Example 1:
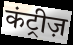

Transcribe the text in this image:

कंट्रीज़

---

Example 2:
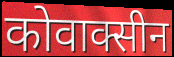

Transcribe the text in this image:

कोवाक्सीन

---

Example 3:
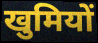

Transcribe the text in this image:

खुमियों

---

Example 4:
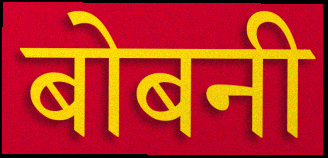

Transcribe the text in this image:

बोबनी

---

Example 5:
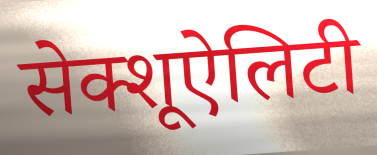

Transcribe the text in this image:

सेक्शूऐलिटी